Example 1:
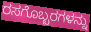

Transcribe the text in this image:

ರಸಗೊಬ್ಬರಗಳನ್ನು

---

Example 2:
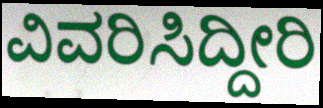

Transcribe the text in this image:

ವಿವರಿಸಿದ್ದೀರಿ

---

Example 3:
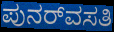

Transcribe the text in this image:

ಪುನರ್‌ವಸತಿ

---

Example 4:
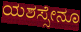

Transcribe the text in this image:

ಯಶಸ್ಸೇನೂ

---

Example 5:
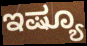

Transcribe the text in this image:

ಇಷ್ಯೂ